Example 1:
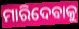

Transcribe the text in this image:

ମାରିଦେବାକୁ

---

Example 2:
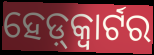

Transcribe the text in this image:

ହେଡ଼୍‌କ୍ୱାର୍ଟର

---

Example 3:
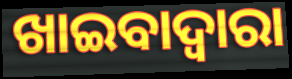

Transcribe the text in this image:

ଖାଇବାଦ୍ଵାରା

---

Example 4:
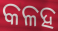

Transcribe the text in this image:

କଳହ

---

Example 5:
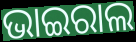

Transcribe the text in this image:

ଭାଇରାଲ